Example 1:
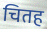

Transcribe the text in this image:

चितह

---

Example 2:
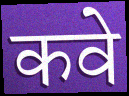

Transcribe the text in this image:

कवे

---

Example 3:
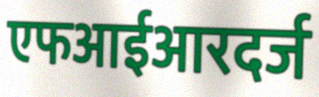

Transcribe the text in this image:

एफआईआरदर्ज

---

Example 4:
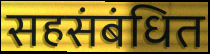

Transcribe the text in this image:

सहसंबंधित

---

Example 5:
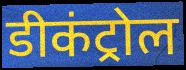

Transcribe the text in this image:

डीकंट्रोल